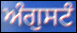
ਅੰਗੁਸਟੰ